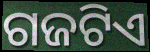
ଗଜଟିଏ